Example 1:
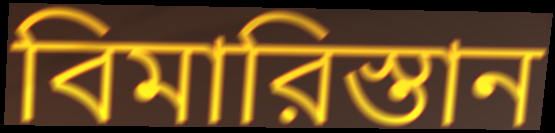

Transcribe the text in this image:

বিমারিস্তান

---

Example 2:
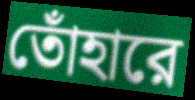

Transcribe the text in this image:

তোঁহারে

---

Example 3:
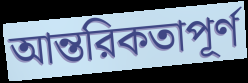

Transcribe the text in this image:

আন্তরিকতাপূর্ণ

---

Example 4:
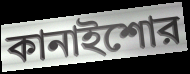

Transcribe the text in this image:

কানাইশোর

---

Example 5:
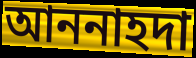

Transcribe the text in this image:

আননাহদা